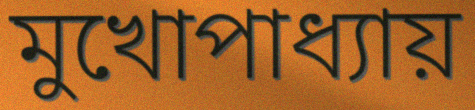
মুখোপাধ্যায়